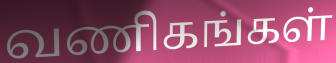
வணிகங்கள்